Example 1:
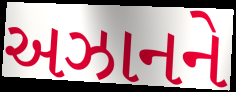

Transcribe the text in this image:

અઝાનને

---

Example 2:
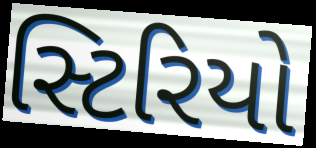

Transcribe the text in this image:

સ્ટિરિયો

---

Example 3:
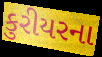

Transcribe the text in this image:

કુરીયરના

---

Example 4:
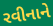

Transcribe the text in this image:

રવીનાને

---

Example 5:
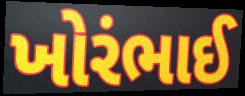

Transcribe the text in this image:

ખોરંભાઈ